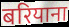
बरियाना